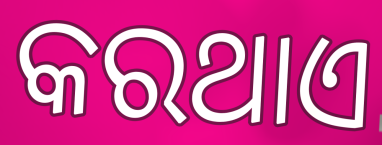
କରଥାଏ